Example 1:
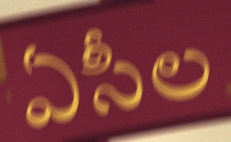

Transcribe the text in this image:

ఏసీల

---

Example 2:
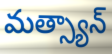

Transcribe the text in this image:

మత్స్యాన్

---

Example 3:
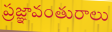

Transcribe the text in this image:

ప్రజ్ఞావంతురాలు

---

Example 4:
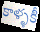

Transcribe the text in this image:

కాళ్ళకీ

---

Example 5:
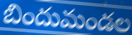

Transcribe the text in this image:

బిందుమండల